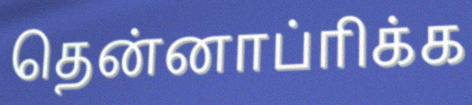
தென்னாப்ரிக்க